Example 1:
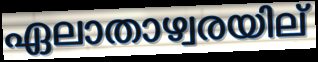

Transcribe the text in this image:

ഏലാതാഴ്വരയില്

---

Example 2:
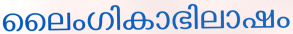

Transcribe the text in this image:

ലൈംഗികാഭിലാഷം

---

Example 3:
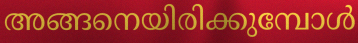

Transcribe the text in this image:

അങ്ങനെയിരിക്കുമ്പോൾ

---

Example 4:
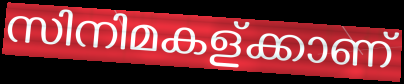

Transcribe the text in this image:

സിനിമകള്ക്കാണ്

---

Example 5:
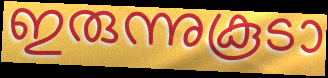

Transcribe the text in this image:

ഇരുന്നുകൂടാ